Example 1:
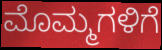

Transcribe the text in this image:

ಮೊಮ್ಮಗಳಿಗೆ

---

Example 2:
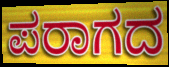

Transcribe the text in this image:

ಪರಾಗದ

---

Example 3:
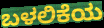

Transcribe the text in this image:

ಬಳಲಿಕೆಯ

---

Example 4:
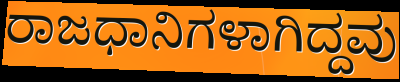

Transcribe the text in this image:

ರಾಜಧಾನಿಗಳಾಗಿದ್ದವು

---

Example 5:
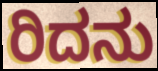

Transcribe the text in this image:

ರಿದನು